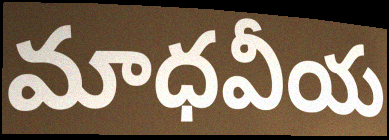
మాధవీయ